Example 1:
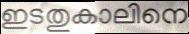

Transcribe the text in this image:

ഇടതുകാലിനെ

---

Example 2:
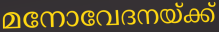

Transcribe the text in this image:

മനോവേദനയ്ക്ക്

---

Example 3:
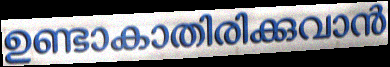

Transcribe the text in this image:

ഉണ്ടാകാതിരിക്കുവാൻ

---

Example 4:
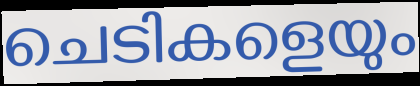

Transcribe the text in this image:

ചെടികളെയും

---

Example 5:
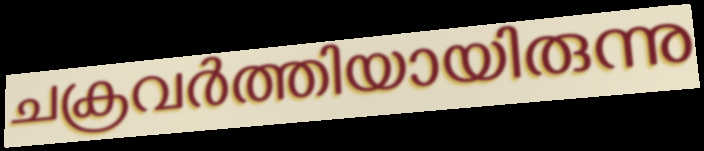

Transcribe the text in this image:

ചക്രവർത്തിയായിരുന്നു